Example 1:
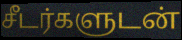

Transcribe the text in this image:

சீடர்களுடன்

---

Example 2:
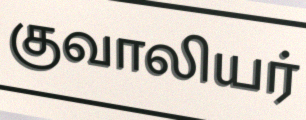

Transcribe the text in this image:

குவாலியர்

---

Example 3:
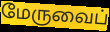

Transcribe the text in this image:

மேருவைப்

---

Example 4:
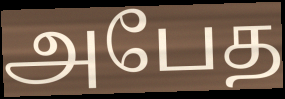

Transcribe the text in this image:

அபேத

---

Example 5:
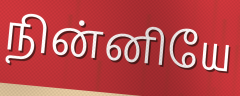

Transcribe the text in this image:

நின்னியே